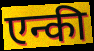
एन्की